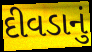
દીવડાનું